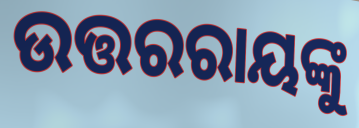
ଉତ୍ତରରାୟଙ୍କୁ